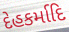
દેહકર્માદિ